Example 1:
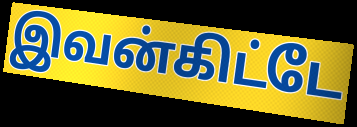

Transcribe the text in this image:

இவன்கிட்டே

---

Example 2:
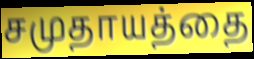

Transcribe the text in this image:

சமுதாயத்தை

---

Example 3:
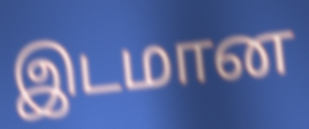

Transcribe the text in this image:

இடமான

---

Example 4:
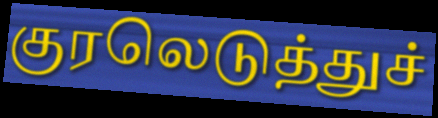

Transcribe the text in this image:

குரலெடுத்துச்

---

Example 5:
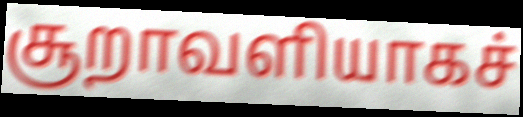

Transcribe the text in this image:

சூறாவளியாகச்